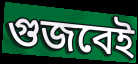
গুজবেই